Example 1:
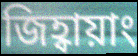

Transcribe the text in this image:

জিহ্বায়াং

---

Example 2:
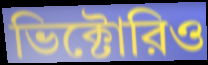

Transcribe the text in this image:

ভিক্টোরিও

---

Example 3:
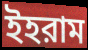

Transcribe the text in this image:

ইহরাম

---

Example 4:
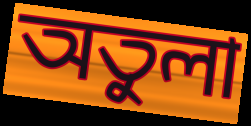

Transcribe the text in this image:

অতুলা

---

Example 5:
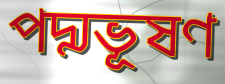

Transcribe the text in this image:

পদ্মভূষণ